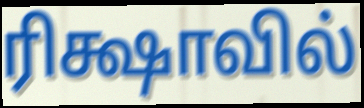
ரிக்ஷாவில்